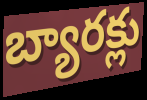
బ్యారక్లు